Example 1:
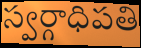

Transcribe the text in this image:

స్వర్గాధిపతి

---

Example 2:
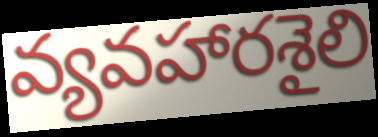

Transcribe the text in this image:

వ్యవహారశైలి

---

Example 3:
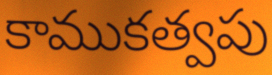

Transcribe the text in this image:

కాముకత్వపు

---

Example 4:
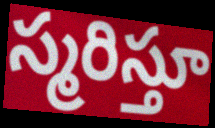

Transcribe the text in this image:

స్మరిస్తూ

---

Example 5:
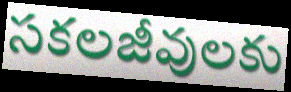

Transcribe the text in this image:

సకలజీవులకు